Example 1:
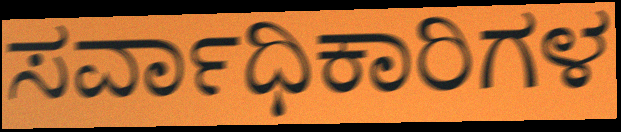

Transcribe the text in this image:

ಸರ್ವಾಧಿಕಾರಿಗಳ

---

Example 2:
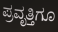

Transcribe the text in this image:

ಪ್ರವೃತ್ತಿಗೂ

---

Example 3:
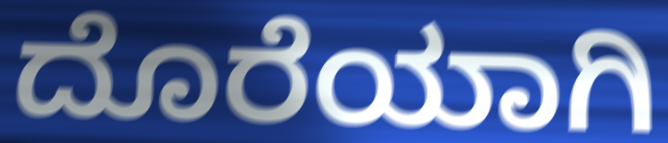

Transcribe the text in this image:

ದೊರೆಯಾಗಿ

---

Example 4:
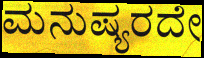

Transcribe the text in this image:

ಮನುಷ್ಯರದೇ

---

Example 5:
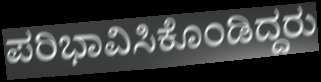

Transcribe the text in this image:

ಪರಿಭಾವಿಸಿಕೊಂಡಿದ್ದರು